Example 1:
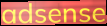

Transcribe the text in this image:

adsense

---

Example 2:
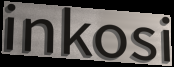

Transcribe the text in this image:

inkosi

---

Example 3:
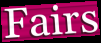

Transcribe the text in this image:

Fairs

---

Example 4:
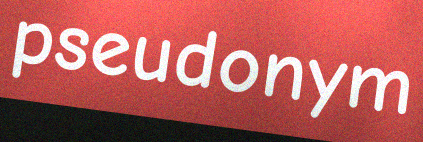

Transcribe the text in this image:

pseudonym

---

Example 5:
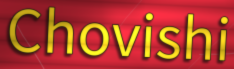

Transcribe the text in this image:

Chovishi